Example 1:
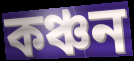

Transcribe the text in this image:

কঞ্চন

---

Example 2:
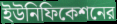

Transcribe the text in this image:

ইউনিফিকেশনের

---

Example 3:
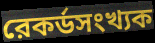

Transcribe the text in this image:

রেকর্ডসংখ্যক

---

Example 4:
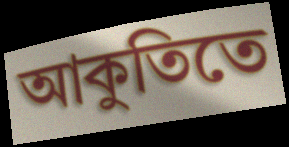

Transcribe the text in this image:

আকুতিতে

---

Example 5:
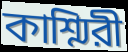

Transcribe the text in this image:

কাশ্মিরী